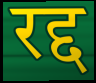
रद्द